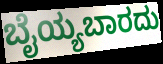
ಬೈಯ್ಯಬಾರದು